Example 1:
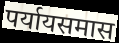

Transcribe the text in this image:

पर्यायसमास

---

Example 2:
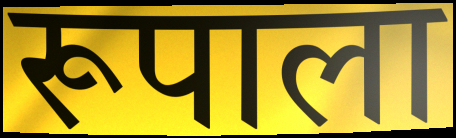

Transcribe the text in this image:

रूपाला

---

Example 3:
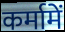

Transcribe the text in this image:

कर्मामें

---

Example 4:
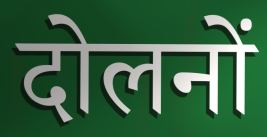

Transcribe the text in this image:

दोलनों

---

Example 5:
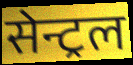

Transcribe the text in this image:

सेन्ट्रल